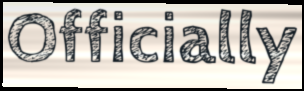
Officially